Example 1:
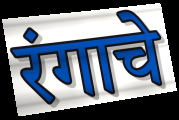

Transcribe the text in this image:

रंगाचे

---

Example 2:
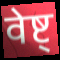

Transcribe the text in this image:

वेष्ट्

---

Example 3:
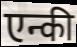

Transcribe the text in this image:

एन्की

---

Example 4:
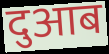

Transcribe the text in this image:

दुआब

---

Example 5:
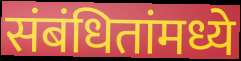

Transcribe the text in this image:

संबंधितांमध्ये